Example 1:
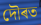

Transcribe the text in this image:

দৌৰত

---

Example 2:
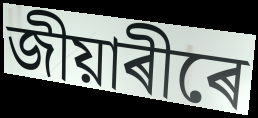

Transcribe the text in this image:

জীয়াৰীৰে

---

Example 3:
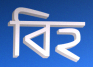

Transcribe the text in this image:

বিহ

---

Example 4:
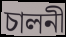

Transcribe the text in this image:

চালনী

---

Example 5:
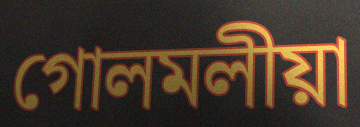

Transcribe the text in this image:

গোলমলীয়া